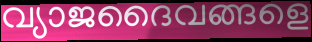
വ്യാജദൈവങ്ങളെ